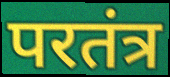
परतंत्र